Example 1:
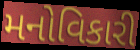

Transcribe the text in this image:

મનોવિકારી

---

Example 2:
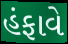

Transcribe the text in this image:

હંફાવે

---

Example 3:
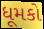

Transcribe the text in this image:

ધૂમકો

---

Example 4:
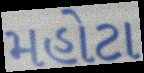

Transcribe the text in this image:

મહોટા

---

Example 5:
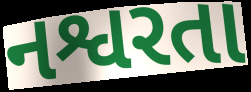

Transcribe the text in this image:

નશ્વરતા